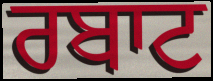
ਰਬਾਟ